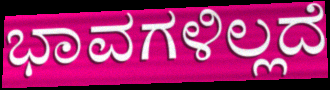
ಭಾವಗಳಿಲ್ಲದೆ